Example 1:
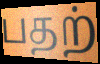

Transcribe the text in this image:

பதற்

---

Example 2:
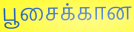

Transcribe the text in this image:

பூசைக்கான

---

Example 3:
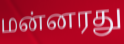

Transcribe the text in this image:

மன்னரது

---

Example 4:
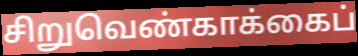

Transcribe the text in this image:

சிறுவெண்காக்கைப்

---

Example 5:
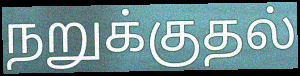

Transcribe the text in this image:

நறுக்குதல்